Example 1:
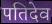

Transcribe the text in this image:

पतिदेव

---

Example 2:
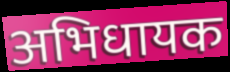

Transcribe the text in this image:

अभिधायक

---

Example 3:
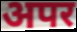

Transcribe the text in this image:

अपर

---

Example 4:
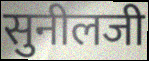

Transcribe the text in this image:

सुनीलजी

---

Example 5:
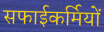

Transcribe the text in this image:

सफाईकर्मियों